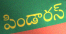
పిండారస్